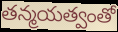
తన్మయత్వంతో